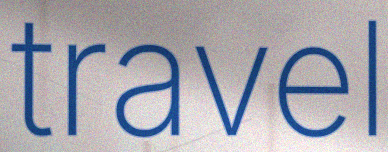
travel